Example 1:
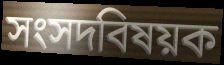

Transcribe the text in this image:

সংসদবিষয়ক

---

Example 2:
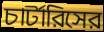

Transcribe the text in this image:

চার্টারিসের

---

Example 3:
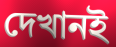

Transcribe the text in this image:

দেখানই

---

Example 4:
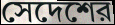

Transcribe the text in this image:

সেদেশের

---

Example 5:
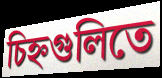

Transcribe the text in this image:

চিহ্নগুলিতে